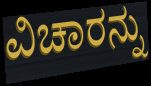
ವಿಚಾರನ್ನು